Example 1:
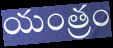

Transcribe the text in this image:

యంత్రం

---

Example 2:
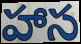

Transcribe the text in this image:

హాస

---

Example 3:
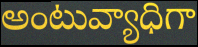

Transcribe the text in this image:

అంటువ్యాధిగా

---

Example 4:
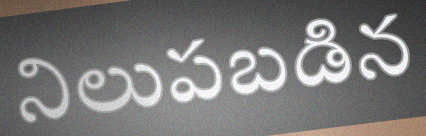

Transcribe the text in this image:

నిలుపబడిన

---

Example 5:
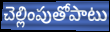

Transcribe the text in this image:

చెల్లింపుతోపాటు